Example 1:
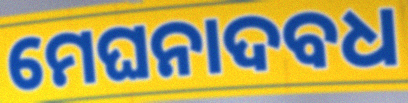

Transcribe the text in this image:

ମେଘନାଦବଧ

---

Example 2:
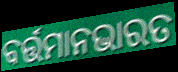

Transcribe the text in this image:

ବର୍ତ୍ତମାନଭାରତ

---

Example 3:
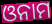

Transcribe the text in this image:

ଓନାମ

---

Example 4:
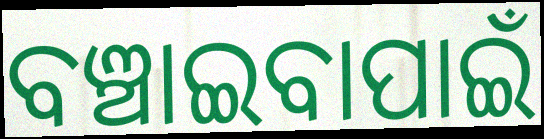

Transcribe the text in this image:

ବଞ୍ଚାଇବାପାଇଁ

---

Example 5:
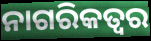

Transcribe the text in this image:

ନାଗରିକତ୍ଵର